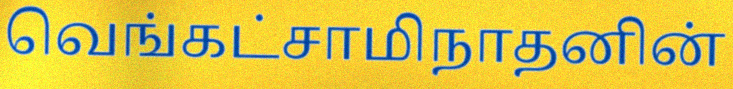
வெங்கட்சாமிநாதனின்